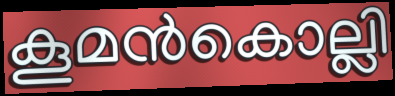
കൂമൻകൊല്ലി